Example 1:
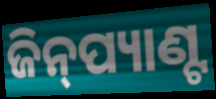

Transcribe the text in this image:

ଜିନ୍‍ପ୍ୟାଣ୍ଟ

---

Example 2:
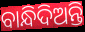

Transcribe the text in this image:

ବାନ୍ଧିଦିଅନ୍ତି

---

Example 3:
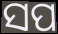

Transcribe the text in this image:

ସପ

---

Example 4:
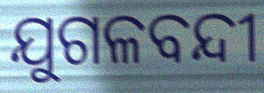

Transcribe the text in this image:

ଯୁଗଳବନ୍ଦୀ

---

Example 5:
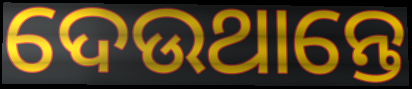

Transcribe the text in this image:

ଦେଉଥାନ୍ତେ